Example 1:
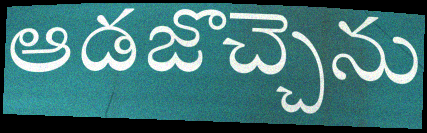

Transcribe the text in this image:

ఆడజొచ్చెను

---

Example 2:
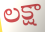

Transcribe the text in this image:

లక్షా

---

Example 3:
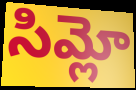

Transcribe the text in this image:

సిమ్లో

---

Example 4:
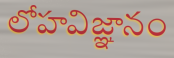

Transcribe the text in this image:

లోహవిజ్ఞానం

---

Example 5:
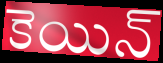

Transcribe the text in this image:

కెయిన్